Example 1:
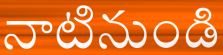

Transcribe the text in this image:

నాటినుండి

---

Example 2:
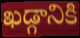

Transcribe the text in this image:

ఖడ్గానికి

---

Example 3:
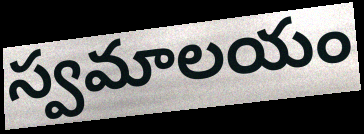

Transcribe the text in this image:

స్వమాలయం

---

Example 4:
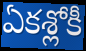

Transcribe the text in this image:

ఏకశ్లోకీ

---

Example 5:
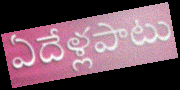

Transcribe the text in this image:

ఏదేళ్లపాటు